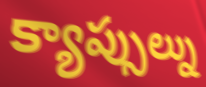
క్యాప్సుల్ను